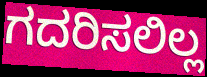
ಗದರಿಸಲಿಲ್ಲ